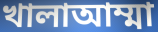
খালাআম্মা